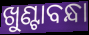
ଖୁଣ୍ଟାବନ୍ଧା